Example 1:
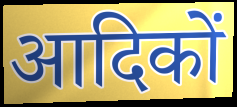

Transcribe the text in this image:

आदिकों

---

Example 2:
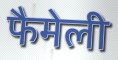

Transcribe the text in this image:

फैमेली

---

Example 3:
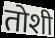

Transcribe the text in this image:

तोशी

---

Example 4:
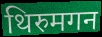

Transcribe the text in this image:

थिरुमगन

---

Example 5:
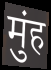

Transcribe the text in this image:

मुंह